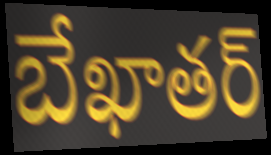
బేఖాతర్